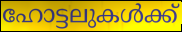
ഹോട്ടലുകൾക്ക്